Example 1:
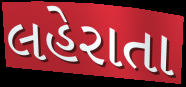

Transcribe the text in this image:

લહેરાતા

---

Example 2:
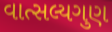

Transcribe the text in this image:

વાત્સલ્યગુણ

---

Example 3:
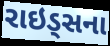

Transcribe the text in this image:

રાઇડ્સના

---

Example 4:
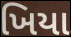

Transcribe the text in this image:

ખિયા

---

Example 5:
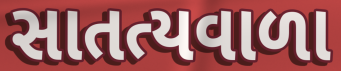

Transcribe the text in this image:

સાતત્યવાળા